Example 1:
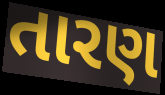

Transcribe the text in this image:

તારણ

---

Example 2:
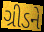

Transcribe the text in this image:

ગ્રીડને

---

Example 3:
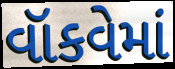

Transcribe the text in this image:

વૉકવેમાં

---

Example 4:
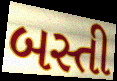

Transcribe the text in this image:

બસ્તી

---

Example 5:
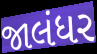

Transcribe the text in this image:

જાલંધર